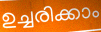
ഉച്ചരിക്കാം